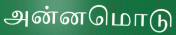
அன்னமொடு